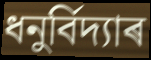
ধনুৰ্বিদ্যাৰ